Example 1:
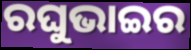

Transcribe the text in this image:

ରଘୁଭାଇର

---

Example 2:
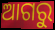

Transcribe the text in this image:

ଆଗରୁ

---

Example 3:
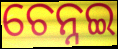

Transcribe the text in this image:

ଚେନ୍ନଇ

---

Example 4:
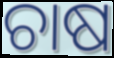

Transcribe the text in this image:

ଚାଷ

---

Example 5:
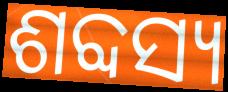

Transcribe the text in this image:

ଶବ୍ଦସ୍ଯ